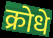
क्रोधे